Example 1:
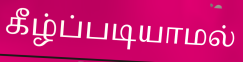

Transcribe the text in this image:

கீழ்ப்படியாமல்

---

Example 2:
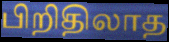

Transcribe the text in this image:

பிறிதிலாத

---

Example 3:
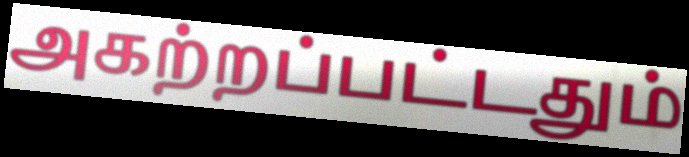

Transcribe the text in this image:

அகற்றப்பட்டதும்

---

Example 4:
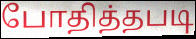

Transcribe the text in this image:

போதித்தபடி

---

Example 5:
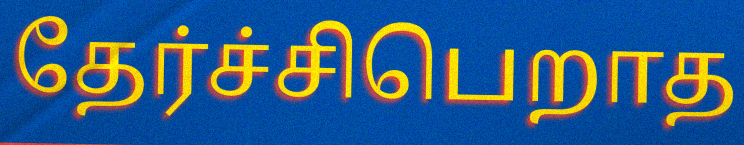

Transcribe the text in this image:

தேர்ச்சிபெறாத